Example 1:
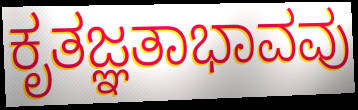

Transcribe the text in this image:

ಕೃತಜ್ಞತಾಭಾವವು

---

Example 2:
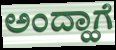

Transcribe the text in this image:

ಅಂದ್ಹಾಗೆ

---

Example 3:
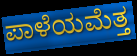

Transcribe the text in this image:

ಪಾಳೆಯಮೆತ್ತ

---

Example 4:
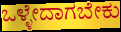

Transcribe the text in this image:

ಒಳ್ಳೇದಾಗಬೇಕು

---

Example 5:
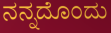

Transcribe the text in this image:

ನನ್ನದೊಂದು